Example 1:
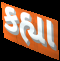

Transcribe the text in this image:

કહ્યા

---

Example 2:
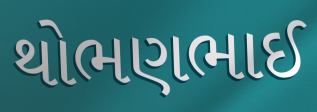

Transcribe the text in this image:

થોભણભાઈ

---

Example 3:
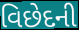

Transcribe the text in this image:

વિછેદની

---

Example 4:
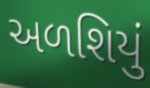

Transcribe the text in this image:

અળશિયું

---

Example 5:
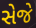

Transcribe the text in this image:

સેજે